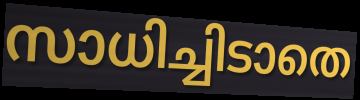
സാധിച്ചിടാതെ